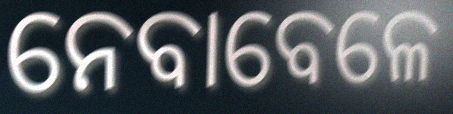
ନେବାବେଳେ